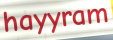
hayyram